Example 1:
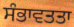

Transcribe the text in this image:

ਸੰਭਾਵਤਤਾ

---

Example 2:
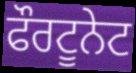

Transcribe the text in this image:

ਫੌਰਟੂਨੇਟ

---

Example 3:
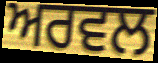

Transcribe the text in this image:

ਅਰਵਲ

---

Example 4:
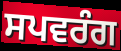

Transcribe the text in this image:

ਸਪਵਰੰਗ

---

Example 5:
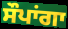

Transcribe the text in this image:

ਸੌਪਾਂਗਾ